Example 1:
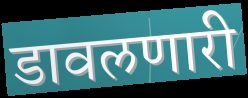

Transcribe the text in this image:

डावलणारी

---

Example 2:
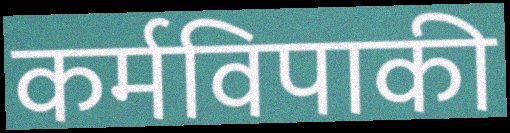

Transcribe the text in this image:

कर्मविपाकी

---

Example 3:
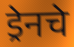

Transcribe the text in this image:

ड्रेनचे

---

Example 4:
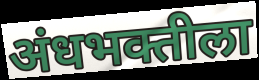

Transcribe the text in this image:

अंधभक्तीला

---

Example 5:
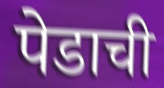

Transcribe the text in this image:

पेडाची